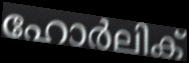
ഹോർലിക്